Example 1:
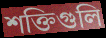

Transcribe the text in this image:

শক্তিগুলি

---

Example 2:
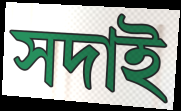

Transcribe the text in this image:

সদাই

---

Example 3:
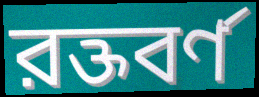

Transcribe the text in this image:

রক্তবর্ণ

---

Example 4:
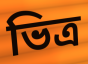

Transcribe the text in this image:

ভিত্র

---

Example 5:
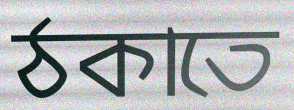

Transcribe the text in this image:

ঠকাতে